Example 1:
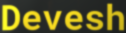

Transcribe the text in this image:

Devesh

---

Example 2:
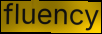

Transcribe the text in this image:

fluency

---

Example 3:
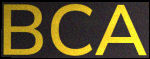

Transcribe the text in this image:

BCA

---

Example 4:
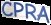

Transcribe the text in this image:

CPRA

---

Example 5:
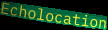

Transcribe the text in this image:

Echolocation